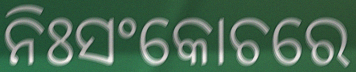
ନିଃସଂକୋଚରେ